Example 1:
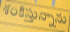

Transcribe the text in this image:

శంకిస్తున్నాను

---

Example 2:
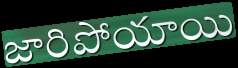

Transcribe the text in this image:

జారిపోయాయి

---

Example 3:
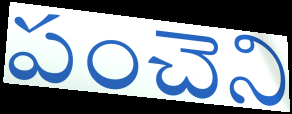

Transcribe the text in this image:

పంచెని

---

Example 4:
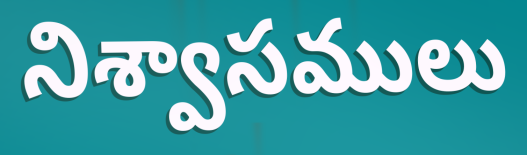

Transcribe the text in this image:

నిశ్వాసములు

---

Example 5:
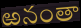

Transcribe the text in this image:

ఱనంతా